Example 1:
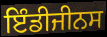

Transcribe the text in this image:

ਇੰਡੀਜੀਨਸ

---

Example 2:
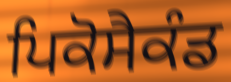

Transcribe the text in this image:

ਪਿਕੋਸੈਕੰਡ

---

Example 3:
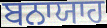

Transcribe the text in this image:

ਬਨਾਯਾਹ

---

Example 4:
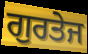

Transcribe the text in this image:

ਗੁਰਤੇਜ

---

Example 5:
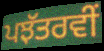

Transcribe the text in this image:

ਪਝੱਤਰਵੀਂ